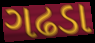
ગઢડા